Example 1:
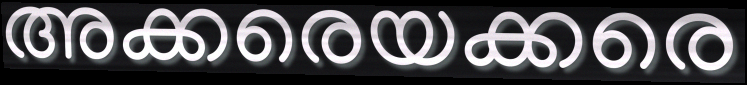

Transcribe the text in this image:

അക്കരെയക്കരെ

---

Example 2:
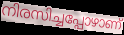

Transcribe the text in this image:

നിരസിച്ചപ്പോഴാണ്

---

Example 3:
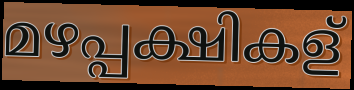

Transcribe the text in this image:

മഴപ്പക്ഷികള്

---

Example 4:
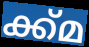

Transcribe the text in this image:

ക്ക്മ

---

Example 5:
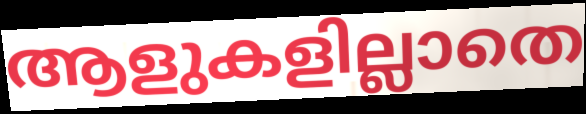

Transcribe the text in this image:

ആളുകളില്ലാതെ